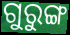
ଗୁରୁଙ୍ଗ